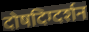
दोषदिग्दर्शन